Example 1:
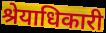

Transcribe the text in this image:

श्रेयाधिकारी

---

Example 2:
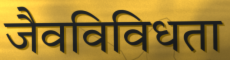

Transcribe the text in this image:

जैवविविधता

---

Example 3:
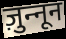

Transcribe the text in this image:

ज़ुन्नून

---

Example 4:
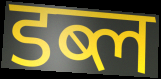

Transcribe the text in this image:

डब्ल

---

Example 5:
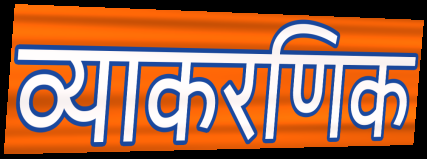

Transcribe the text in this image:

व्याकरणिक